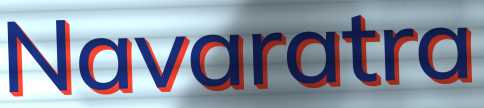
Navaratra